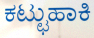
ಕಟ್ಟುಹಾಕಿ